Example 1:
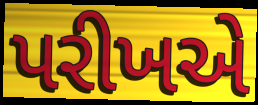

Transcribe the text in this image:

પરીખએ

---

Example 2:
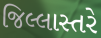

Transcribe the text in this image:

જિલ્લાસ્તરે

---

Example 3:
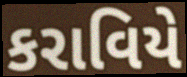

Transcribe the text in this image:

કરાવિયે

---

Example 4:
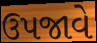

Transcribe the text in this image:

ઉપજાવે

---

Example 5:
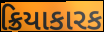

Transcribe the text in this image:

ક્રિયાકારક